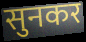
सुनकर